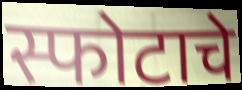
स्फोटाचे